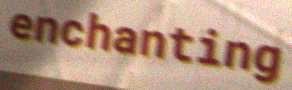
enchanting